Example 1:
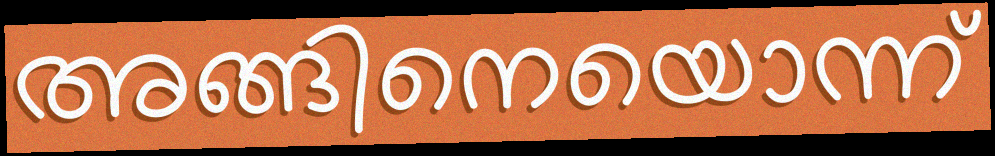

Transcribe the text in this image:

അങ്ങിനെയൊന്ന്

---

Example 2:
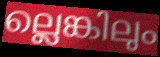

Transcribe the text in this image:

ല്ലെങ്കിലും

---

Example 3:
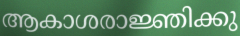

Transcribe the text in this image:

ആകാശരാജ്ഞിക്കു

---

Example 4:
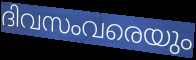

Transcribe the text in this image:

ദിവസംവരെയും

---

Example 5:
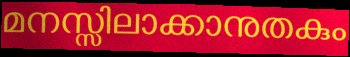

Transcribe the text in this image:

മനസ്സിലാക്കാനുതകും